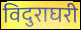
विदुराघरी